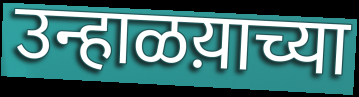
उन्हाळय़ाच्या